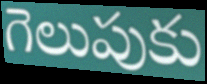
గెలుపుకు